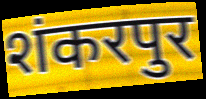
शंकरपुर